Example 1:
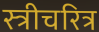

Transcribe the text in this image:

स्त्रीचरित्र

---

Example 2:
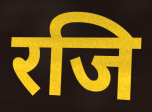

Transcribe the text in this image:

रजि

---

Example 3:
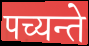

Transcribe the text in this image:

पच्यन्ते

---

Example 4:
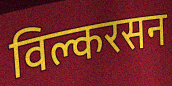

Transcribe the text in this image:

विल्करसन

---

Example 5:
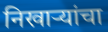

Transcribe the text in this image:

निखार्‍यांचा